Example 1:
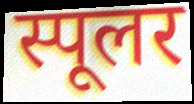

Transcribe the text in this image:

स्पूलर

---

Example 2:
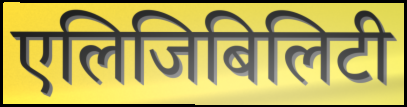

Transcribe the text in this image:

एलिजिबिलिटी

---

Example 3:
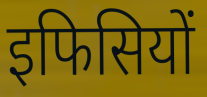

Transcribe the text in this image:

इफिसियों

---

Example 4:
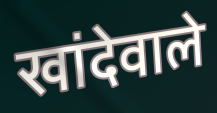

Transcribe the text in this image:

खांदेवाले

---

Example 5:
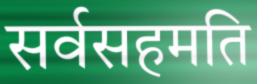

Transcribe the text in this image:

सर्वसहमति